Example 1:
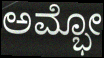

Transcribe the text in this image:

ಅಮ್ಭೋ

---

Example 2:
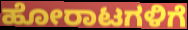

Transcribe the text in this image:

ಹೋರಾಟಗಳಿಗೆ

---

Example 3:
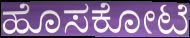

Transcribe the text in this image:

ಹೊಸಕೋಟೆ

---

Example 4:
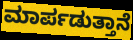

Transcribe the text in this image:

ಮಾರ್ಪಡುತ್ತಾನೆ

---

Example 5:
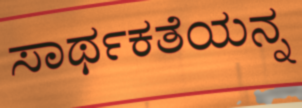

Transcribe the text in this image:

ಸಾರ್ಥಕತೆಯನ್ನ